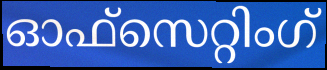
ഓഫ്സെറ്റിംഗ്